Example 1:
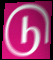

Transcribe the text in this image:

டு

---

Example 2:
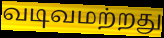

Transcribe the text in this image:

வடிவமற்றது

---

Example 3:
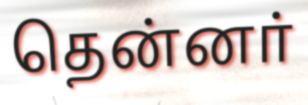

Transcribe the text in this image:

தென்னர்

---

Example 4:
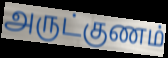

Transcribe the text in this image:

அருட்குணம்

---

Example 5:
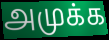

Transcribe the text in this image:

அமுக்க